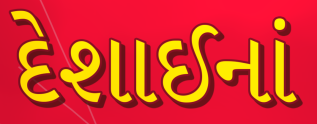
દેશાઈનાં